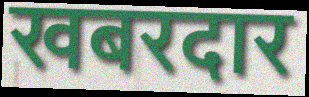
खबरदार